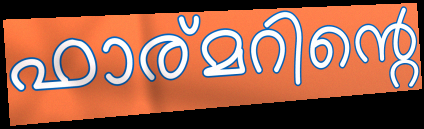
ഫാര്മറിന്റെ